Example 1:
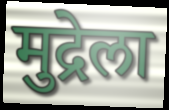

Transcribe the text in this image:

मुद्रेला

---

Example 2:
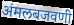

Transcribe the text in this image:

अंमलबजवणी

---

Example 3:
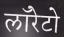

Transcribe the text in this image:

लॉरेटो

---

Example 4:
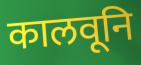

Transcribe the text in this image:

कालवूनि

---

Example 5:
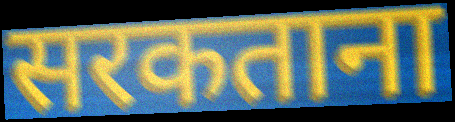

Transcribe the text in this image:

सरकताना